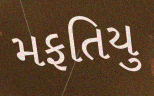
મફતિયુ